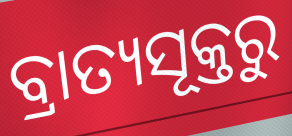
ବ୍ରାତ୍ୟସୂକ୍ତରୁ